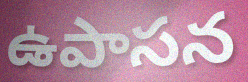
ఉపాసన